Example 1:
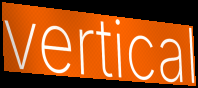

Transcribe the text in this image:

vertical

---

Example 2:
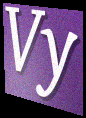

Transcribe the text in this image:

Vy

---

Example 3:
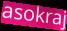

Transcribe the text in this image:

asokraj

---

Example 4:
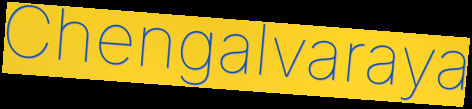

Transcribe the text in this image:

Chengalvaraya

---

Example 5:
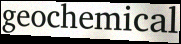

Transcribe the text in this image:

geochemical